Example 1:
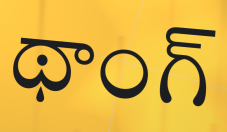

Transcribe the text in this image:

థాంగ్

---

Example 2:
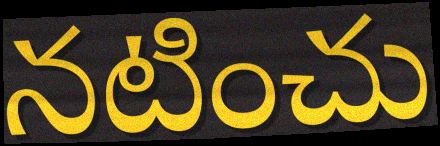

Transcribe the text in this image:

నటించు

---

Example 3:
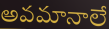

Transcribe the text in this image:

అవమానాలే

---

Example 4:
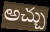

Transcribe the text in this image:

అచ్చు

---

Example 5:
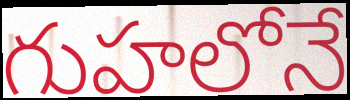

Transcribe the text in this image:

గుహలోనే